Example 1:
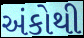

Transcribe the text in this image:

અંકોથી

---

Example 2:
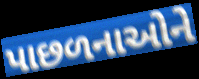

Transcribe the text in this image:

પાછળનાઓને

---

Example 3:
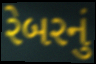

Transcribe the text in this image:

રેબરનું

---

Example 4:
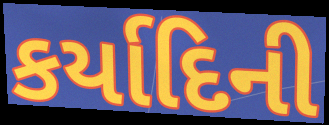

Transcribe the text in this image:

કર્યાદિની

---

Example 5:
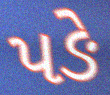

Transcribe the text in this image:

પઙે